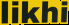
likhi